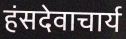
हंसदेवाचार्य